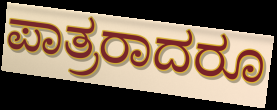
ಪಾತ್ರರಾದರೂ